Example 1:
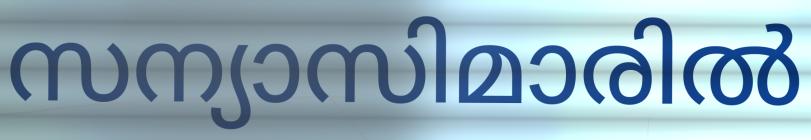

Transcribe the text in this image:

സന്യാസിമാരിൽ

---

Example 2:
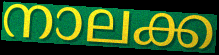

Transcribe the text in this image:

നാലക്ക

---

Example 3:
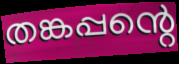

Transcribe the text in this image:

തങ്കപ്പന്റെ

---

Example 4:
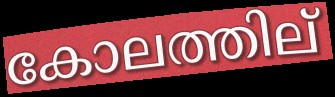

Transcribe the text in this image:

കോലത്തില്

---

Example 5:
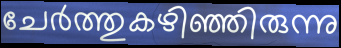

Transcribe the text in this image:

ചേർത്തുകഴിഞ്ഞിരുന്നു